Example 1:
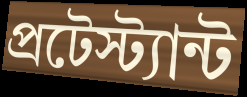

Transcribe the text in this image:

প্রটেস্ট্যান্ট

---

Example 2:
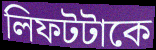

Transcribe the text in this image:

লিফটটাকে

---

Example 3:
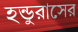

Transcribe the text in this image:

হন্ডুরাসের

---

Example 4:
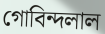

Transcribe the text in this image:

গোবিন্দলাল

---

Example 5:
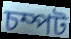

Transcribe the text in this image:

চম্পট